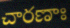
చారణాః